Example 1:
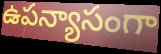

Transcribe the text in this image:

ఉపన్యాసంగా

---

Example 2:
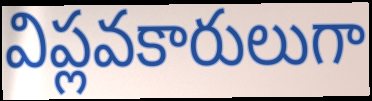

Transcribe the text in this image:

విప్లవకారులుగా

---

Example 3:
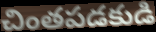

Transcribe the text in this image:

చింతపడకుడి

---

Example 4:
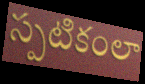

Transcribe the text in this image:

స్పటికంలా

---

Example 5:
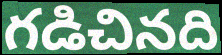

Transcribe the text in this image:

గడిచినది